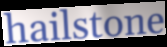
hailstone